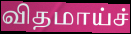
விதமாய்ச்